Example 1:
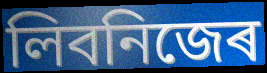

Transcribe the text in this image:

লিবনিজেৰ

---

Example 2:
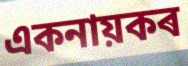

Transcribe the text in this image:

একনায়কৰ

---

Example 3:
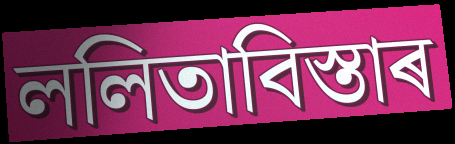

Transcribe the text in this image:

ললিতাবিস্তাৰ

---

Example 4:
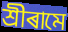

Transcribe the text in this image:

শ্ৰীৰামে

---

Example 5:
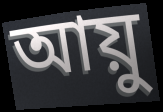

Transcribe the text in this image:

আয়ু